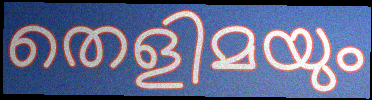
തെളിമയും